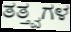
ತತ್ತ್ವಗಳ